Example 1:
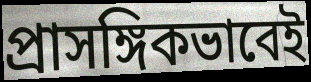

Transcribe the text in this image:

প্রাসঙ্গিকভাবেই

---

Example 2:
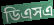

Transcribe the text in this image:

ডিএসএ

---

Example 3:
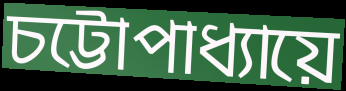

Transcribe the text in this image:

চট্টোপাধ্যায়ে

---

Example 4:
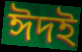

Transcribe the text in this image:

ঈদই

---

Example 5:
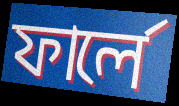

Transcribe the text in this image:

ফার্লে